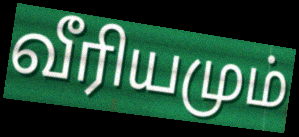
வீரியமும்